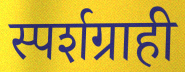
स्पर्शग्राही